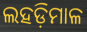
ଲହଡ଼ିମାଳ